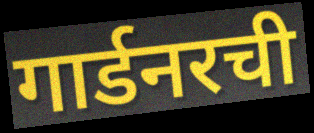
गार्डनरची